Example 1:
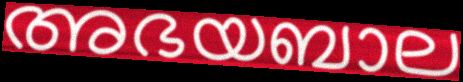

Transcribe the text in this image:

അഭയബാല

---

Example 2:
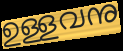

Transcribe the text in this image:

ഉള്ളവനു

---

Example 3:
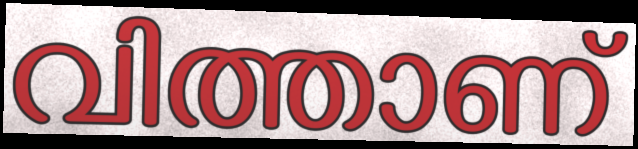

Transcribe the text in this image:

വിത്താണ്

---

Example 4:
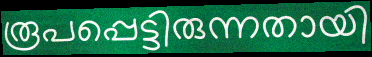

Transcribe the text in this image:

രൂപപ്പെട്ടിരുന്നതായി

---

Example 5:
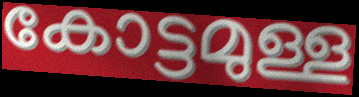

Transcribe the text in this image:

കോട്ടമുള്ള